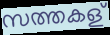
സത്തകള്